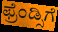
ಫ್ರೆಂಡ್ಸಿಗೆ